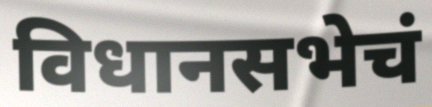
विधानसभेचं